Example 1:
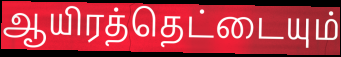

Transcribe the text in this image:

ஆயிரத்தெட்டையும்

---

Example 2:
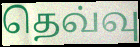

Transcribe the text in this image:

தெவ்வு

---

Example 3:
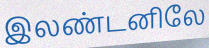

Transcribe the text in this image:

இலண்டனிலே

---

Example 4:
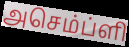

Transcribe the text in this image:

அசெம்ப்ளி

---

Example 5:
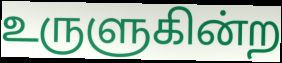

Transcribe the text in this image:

உருளுகின்ற